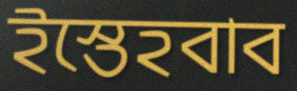
ইস্তেহবাব